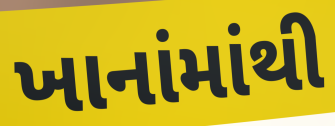
ખાનાંમાંથી